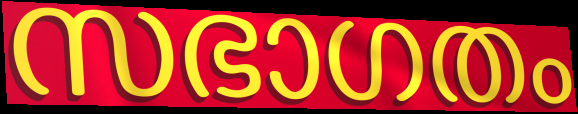
സഭാഗതം